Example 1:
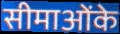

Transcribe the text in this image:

सीमाओंके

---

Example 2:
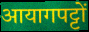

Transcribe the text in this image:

आयागपट्टों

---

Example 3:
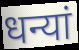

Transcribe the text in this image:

धन्यां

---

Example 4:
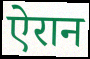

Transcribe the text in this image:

ऐरान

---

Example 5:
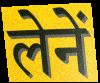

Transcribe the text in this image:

लेनें